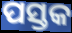
ପସ୍ତକ